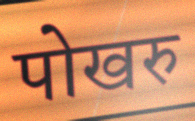
पोखरु